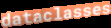
dataclasses